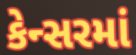
કેન્સરમાં